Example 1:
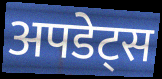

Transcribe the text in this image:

अपडेट्स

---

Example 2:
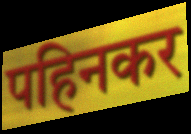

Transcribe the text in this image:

पहिनकर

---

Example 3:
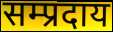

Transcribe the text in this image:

सम्प्रदाय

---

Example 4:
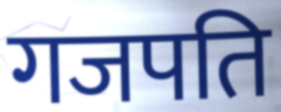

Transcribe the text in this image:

गजपति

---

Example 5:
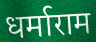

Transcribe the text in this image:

धर्माराम